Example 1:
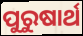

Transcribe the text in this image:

ପୁରୁଷାର୍ଥ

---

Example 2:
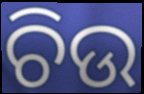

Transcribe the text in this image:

ଚିଉ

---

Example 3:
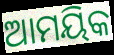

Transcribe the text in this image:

ଆମୟିକ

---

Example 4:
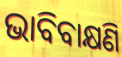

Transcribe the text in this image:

ଭାବିବାକ୍ଷଣି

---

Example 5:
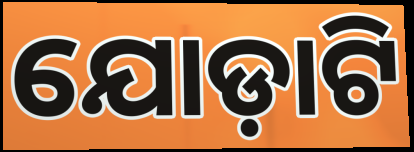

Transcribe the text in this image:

ଯୋଡ଼ାଟି